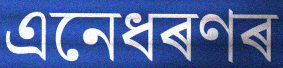
এনেধৰণৰ